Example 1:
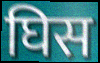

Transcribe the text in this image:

घिस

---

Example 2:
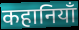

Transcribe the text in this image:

कहानियाँ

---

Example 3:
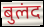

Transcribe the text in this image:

बुलंद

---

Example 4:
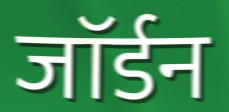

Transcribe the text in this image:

जॉर्डन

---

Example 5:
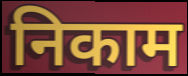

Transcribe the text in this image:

निकाम